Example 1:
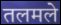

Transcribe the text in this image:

तलमले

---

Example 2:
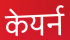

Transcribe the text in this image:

केयर्न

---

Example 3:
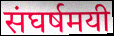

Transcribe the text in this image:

संघर्षमयी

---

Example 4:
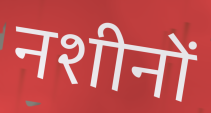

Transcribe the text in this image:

नशीनों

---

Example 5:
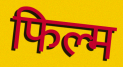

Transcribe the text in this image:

फिल्‍म